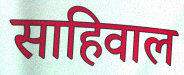
साहिवाल